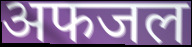
अफजल